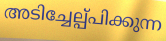
അടിച്ചേല്പ്പിക്കുന്ന